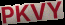
PKVY